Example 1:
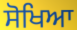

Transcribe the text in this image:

ਸੋਖਿਆ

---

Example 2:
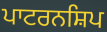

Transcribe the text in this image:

ਪਾਟਰਨਸ਼ਿਪ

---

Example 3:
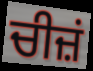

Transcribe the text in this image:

ਚੀਜ਼ਂ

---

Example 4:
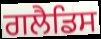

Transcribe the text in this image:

ਗਲੈਡਿਸ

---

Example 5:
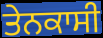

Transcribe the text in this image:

ਤੇਨਕਾਸੀ